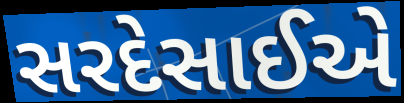
સરદેસાઈએ